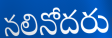
నలినోదరు